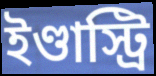
ইণ্ডাস্ট্রি